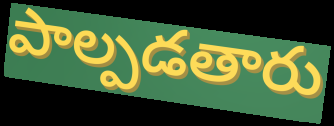
పాల్పడతారు